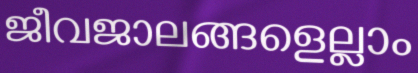
ജീവജാലങ്ങളെല്ലാം